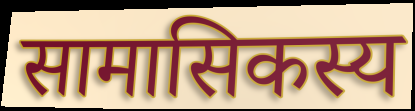
सामासिकस्य